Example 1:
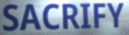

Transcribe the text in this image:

SACRIFY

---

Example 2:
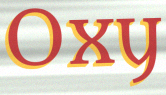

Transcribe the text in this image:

Oxy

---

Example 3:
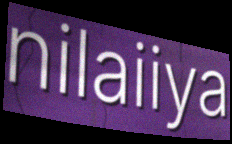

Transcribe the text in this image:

nilaiiya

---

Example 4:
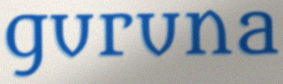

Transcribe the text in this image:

guruna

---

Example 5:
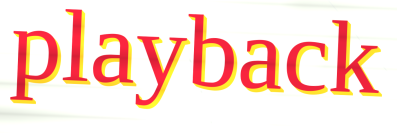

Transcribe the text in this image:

playback